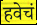
हवेचं